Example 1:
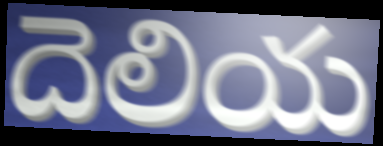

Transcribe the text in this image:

దెలియ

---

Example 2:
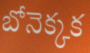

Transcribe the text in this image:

బోనెక్కక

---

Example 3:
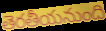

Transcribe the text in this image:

తెరతీయనుంది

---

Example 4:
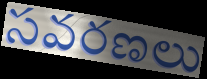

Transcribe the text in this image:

సవరణలు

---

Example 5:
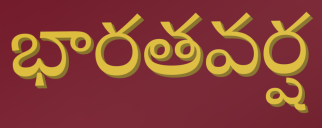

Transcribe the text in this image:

భారతవర్ష